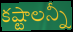
కష్టాలన్నీ